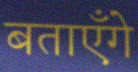
बताएँगे